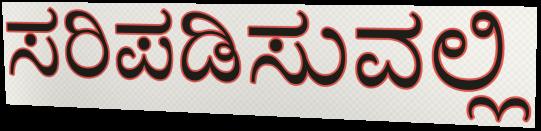
ಸರಿಪಡಿಸುವಲ್ಲಿ